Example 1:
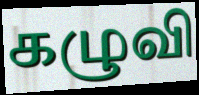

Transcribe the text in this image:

கழுவி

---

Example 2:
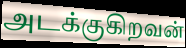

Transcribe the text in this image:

அடக்குகிறவன்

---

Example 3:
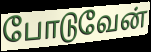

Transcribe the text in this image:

போடுவேன்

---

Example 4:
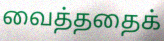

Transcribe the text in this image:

வைத்ததைக்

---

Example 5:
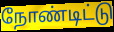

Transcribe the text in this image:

நோண்டிட்டு